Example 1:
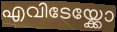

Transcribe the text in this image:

എവിടേയ്ക്കോ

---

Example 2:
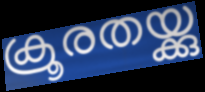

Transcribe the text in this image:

ക്രൂരതയ്ക്കു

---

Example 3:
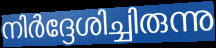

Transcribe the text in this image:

നിർദ്ദേശിച്ചിരുന്നു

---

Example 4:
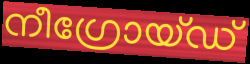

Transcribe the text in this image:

നീഗ്രോയ്ഡ്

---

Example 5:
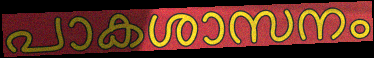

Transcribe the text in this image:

പാകശാസനം